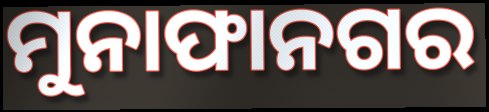
ମୁନାଫାନଗର